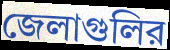
জেলাগুলির